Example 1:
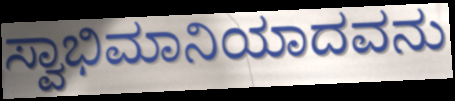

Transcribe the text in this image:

ಸ್ವಾಭಿಮಾನಿಯಾದವನು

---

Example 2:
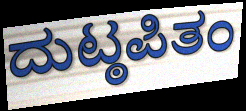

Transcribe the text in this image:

ದುಟ್ಠಪಿತಂ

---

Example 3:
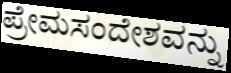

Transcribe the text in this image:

ಪ್ರೇಮಸಂದೇಶವನ್ನು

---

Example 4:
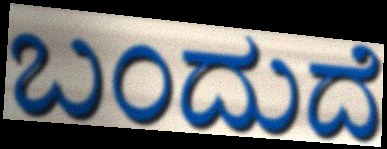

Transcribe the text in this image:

ಬಂದುದೆ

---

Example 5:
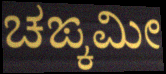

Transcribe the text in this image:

ಚಙ್ಕಮೀ